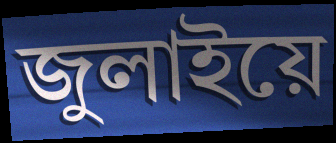
জুলাইয়ে